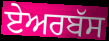
ਏਅਰਬੱਸ